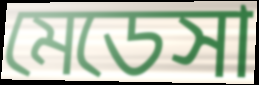
মেডেসা